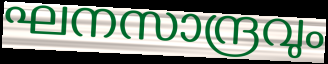
ഘനസാന്ദ്രവും